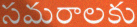
సమరాలకు